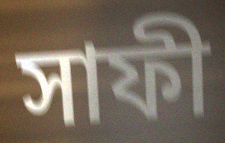
সাফী